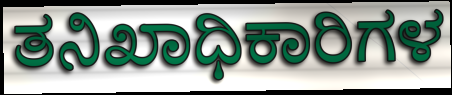
ತನಿಖಾಧಿಕಾರಿಗಳ